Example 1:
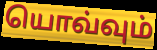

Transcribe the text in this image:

யொவ்வும்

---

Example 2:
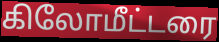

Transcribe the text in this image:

கிலோமீட்டரை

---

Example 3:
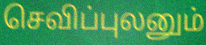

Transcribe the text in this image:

செவிப்புலனும்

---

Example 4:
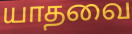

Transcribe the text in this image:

யாதவை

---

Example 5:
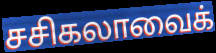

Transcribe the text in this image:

சசிகலாவைக்